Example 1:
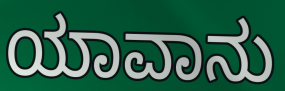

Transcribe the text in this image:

ಯಾವಾನು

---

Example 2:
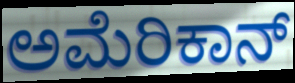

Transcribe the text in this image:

ಅಮೆರಿಕಾನ್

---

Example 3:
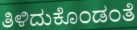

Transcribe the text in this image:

ತಿಳಿದುಕೊಂಡಂತೆ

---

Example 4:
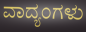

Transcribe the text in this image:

ವಾದ್ಯಂಗಳು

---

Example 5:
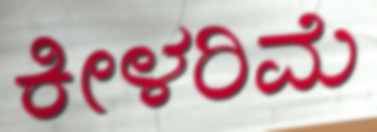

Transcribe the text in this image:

ಕೀಳರಿಮೆ